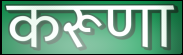
करूणा